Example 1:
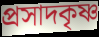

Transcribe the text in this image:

প্রসাদকৃষ্ণ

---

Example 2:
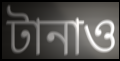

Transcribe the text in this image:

টানাও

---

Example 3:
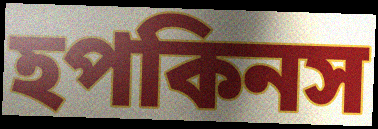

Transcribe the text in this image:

হপকিনস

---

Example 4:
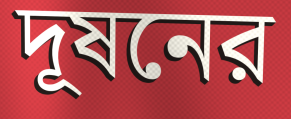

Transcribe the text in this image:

দূষনের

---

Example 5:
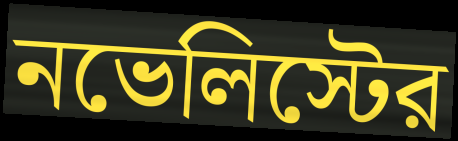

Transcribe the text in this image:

নভেলিস্টের